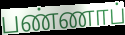
பண்ணாப்